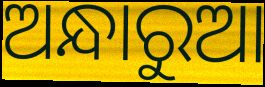
ଅନ୍ଧାରୁଆ